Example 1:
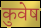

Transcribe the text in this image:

कुवेष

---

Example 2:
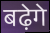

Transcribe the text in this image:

बढ़ेगे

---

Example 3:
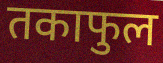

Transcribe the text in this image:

तकाफुल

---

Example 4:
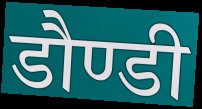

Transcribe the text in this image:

डौण्डी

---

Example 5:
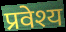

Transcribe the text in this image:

प्रवेश्य